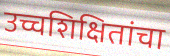
उच्चशिक्षितांचा